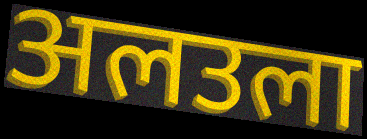
अलउला